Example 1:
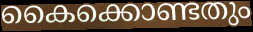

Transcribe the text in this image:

കൈക്കൊണ്ടതും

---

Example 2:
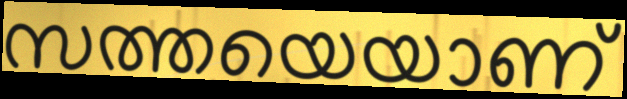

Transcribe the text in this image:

സത്തയെയാണ്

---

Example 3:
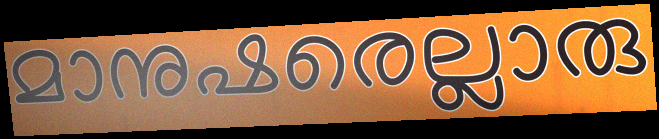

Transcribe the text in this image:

മാനുഷരെല്ലാരു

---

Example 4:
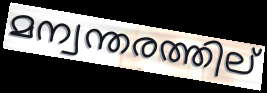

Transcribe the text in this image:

മന്വന്തരത്തില്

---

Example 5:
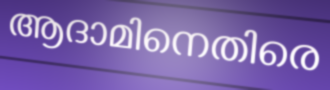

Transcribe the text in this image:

ആദാമിനെതിരെ